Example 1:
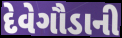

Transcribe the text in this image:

દેવેગૌડાની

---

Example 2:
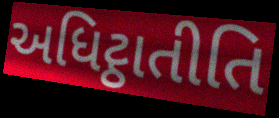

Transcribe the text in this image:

અધિટ્ઠાતીતિ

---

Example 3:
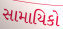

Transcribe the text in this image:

સામાયિકો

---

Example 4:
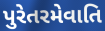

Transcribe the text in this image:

પુરેતરમેવાતિ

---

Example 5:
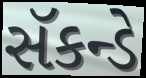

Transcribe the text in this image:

સૅકન્ડે